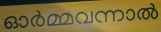
ഓർമ്മവന്നാൽ